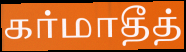
கர்மாதீத்